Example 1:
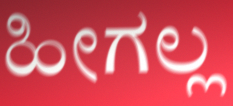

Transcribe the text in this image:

ಹೀಗಲ್ಲ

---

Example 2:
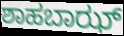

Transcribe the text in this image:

ಶಾಹಬಾಝ್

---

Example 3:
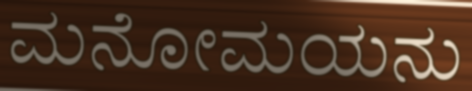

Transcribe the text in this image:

ಮನೋಮಯನು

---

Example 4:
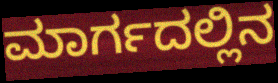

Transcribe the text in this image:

ಮಾರ್ಗದಲ್ಲಿನ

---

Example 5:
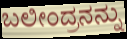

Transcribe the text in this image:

ಬಲೀಂದ್ರನನ್ನು